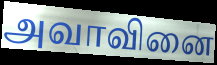
அவாவினை